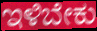
ಇಳಿಬೇಕು